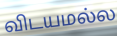
விடயமல்ல